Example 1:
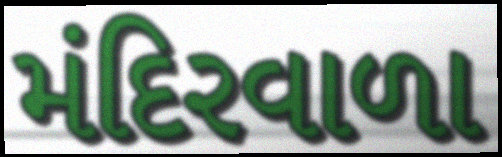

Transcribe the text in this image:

મંદિરવાળા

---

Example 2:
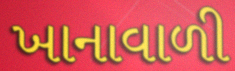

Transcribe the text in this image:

ખાનાવાળી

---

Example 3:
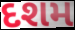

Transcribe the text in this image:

દશમ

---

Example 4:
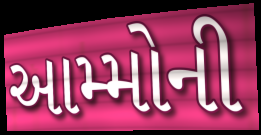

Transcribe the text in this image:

આમ્મોની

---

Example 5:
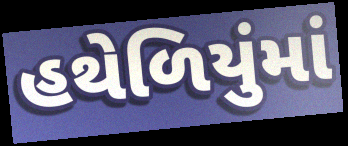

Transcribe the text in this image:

હથેળિયુંમાં